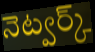
నెట్వర్క్